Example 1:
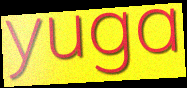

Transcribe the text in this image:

yuga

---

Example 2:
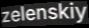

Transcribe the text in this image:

zelenskiy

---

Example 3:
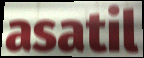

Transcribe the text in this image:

asatil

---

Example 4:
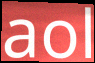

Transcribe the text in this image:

aol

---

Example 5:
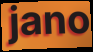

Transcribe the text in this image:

jano